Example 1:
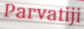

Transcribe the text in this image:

Parvatiji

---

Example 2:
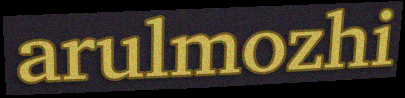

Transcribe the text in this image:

arulmozhi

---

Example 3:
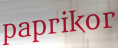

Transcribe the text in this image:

paprikor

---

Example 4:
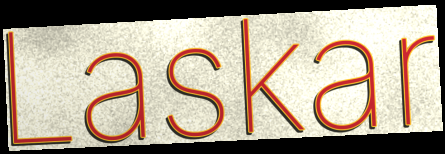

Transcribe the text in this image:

Laskar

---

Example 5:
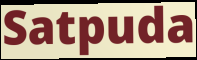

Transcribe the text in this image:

Satpuda